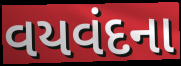
વયવંદના